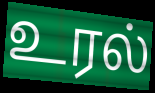
உரல்